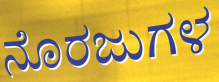
ನೊರಜುಗಳ